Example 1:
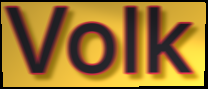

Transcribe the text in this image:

Volk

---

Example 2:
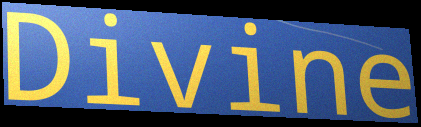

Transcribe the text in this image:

Divine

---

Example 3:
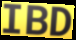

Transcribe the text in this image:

IBD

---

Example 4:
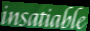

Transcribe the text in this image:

insatiable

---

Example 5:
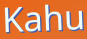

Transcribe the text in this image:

Kahu